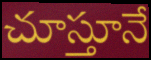
చూస్తూనే